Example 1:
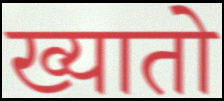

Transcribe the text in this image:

ख्यातो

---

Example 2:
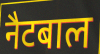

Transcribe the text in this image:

नैटबाल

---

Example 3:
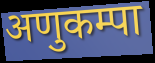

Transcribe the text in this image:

अणुकम्पा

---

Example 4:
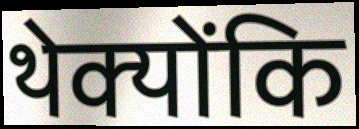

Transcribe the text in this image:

थेक्योंकि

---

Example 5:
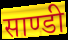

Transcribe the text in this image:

साण्डी